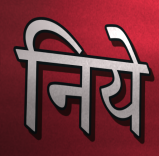
निये